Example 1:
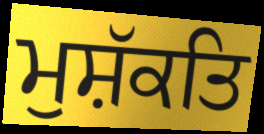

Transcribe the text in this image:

ਮੁਸ਼ੱਕਤਿ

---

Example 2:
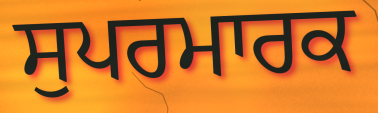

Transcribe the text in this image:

ਸੁਪਰਮਾਰਕ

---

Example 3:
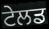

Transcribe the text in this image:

ਟੇਲਡ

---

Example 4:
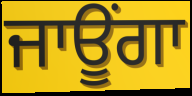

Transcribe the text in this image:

ਜਾਊਂਗਾ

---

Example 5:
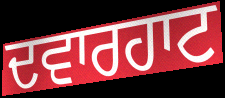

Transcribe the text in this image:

ਦਵਾਰਹਾਟ